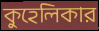
কুহেলিকার